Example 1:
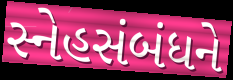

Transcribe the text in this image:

સ્નેહસંબંધને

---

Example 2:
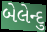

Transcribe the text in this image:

બેલેન્દુ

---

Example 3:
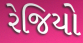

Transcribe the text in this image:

રેજિયો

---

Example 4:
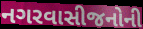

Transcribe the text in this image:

નગરવાસીજનોની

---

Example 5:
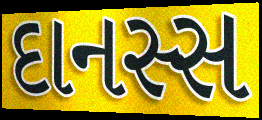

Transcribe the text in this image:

દાનસ્સ